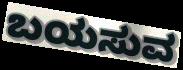
ಬಯಸುವ